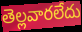
తెల్లవారలేదు